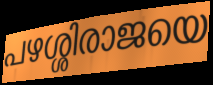
പഴശ്ശിരാജയെ